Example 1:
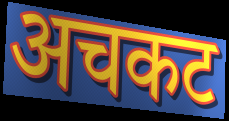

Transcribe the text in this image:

अचकट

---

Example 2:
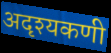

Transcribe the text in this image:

अदृश्यकणी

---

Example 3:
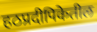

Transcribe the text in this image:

हठप्रदीपिकेतील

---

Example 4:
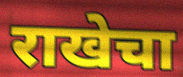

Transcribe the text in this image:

राखेचा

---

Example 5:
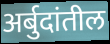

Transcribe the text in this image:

अर्बुदांतील